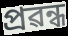
প্ৰৱন্ধ